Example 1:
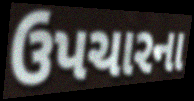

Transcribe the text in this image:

ઉપચારના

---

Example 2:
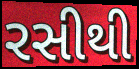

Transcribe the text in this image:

રસીથી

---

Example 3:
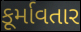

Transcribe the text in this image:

કૂર્માવતાર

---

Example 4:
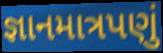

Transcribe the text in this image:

જ્ઞાનમાત્રપણું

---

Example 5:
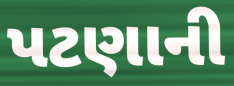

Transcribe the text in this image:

પટણાની